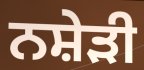
ਨਸ਼ੇੜੀ